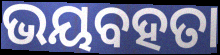
ଭୟବହତା